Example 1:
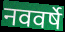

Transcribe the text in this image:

नववर्षे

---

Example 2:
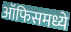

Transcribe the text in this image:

ऑफिसमध्ये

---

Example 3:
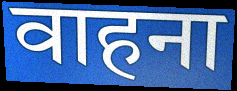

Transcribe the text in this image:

वाहना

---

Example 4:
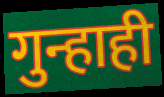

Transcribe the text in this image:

गुन्हाही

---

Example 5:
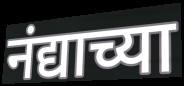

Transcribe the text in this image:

नंद्याच्या